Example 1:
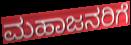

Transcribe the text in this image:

ಮಹಾಜನರಿಗೆ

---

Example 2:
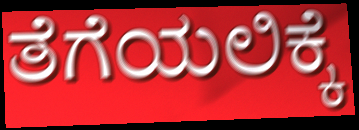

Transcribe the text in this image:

ತೆಗೆಯಲಿಕ್ಕೆ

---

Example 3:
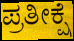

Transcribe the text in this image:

ಪ್ರತೀಕ್ಷೆ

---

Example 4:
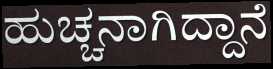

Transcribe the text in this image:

ಹುಚ್ಚನಾಗಿದ್ದಾನೆ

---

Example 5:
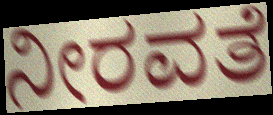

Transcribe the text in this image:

ನೀರವತೆ